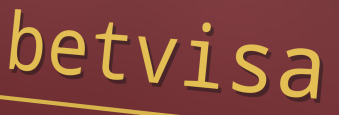
betvisa